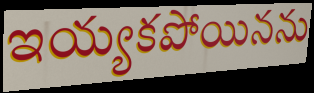
ఇయ్యకపోయినను